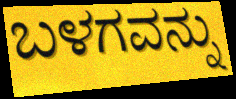
ಬಳಗವನ್ನು